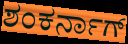
ಶಂಕರ್ನಾಗ್